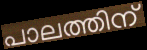
പാലത്തിന്